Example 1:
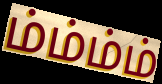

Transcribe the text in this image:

ம்ம்ம்ம்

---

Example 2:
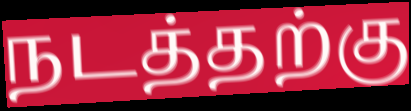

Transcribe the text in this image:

நடத்தற்கு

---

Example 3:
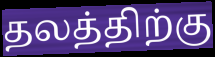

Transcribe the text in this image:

தலத்திற்கு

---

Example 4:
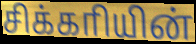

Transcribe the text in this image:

சிக்கரியின்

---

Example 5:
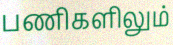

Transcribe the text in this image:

பணிகளிலும்